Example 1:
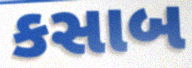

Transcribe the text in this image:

કસાબ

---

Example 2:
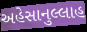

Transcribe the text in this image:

અહેસાનુલ્લાહ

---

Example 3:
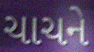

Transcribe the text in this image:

ચાચને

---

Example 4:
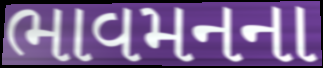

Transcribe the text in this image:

ભાવમનના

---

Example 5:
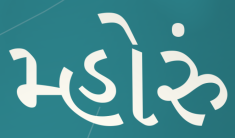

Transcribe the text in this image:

મ્હોરું